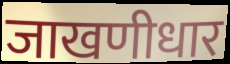
जाखणीधार